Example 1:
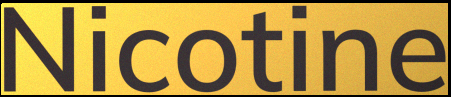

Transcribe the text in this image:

Nicotine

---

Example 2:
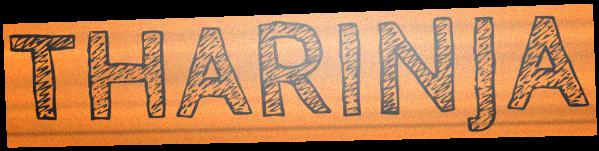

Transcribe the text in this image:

THARINJA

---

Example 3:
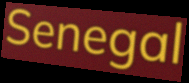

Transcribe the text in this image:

Senegal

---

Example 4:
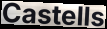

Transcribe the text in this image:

Castells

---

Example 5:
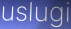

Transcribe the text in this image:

uslugi